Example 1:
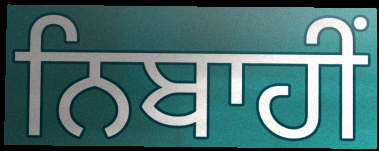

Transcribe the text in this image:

ਨਿਬਾਹੀਂ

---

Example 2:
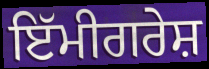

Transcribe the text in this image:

ਇੱਮੀਗਰੇਸ਼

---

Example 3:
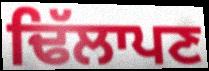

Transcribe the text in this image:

ਢਿੱਲਾਪਣ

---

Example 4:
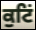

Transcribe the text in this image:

ਕੁਟਿਂ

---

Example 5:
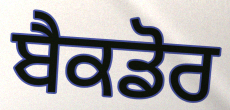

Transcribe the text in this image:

ਬੈਕਡੋਰ